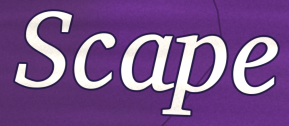
Scape